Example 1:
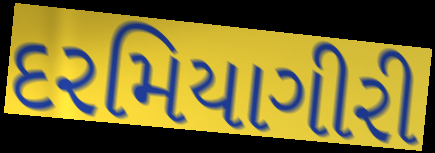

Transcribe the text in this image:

દરમિયાગીરી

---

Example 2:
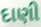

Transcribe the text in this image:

દાણી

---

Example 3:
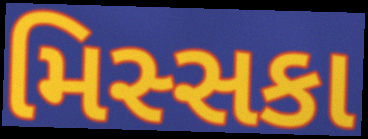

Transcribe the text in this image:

મિસ્સકા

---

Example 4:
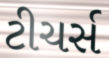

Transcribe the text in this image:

ટીચર્સ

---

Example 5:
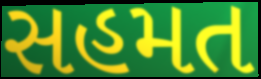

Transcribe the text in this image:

સહમત